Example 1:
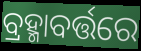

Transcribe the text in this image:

ବ୍ରହ୍ମାବର୍ତ୍ତରେ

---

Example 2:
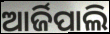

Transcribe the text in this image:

ଆର୍ଜିପାଲି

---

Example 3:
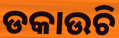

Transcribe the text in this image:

ଡକାଉଚି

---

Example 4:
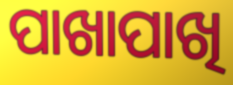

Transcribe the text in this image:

ପାଖାପାଖି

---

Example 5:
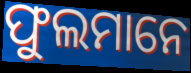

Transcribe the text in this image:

ଫୁଲମାନେ